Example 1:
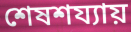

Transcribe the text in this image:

শেষশয্যায়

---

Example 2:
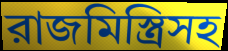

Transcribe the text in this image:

রাজমিস্ত্রিসহ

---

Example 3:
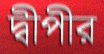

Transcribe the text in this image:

দ্বীপীর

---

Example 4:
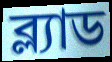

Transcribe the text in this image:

ব্ল্যাড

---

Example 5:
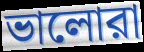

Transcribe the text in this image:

ভালোরা